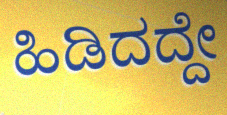
ಹಿಡಿದದ್ದೇ